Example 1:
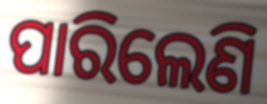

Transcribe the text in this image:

ପାରିଲେଣି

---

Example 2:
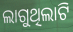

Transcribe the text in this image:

ଲାଗୁଥିଲାଟି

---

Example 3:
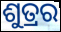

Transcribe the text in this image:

ଶୁତ୍ରର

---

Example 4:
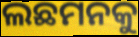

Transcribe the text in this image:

ଲଛମନକୁ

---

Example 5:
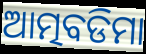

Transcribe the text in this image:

ଆତ୍ମବଡିମା